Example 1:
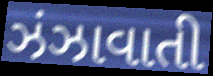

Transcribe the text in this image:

ઝંઝાવાતી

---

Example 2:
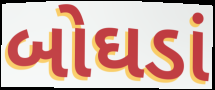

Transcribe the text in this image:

બોઘડાં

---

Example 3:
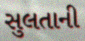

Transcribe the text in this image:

સુલતાની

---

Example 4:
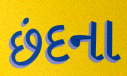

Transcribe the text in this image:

છંદના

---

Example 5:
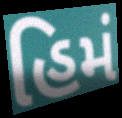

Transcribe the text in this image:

હિમં